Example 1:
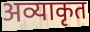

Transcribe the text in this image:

अव्याकृत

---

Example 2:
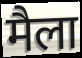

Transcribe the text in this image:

मैला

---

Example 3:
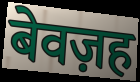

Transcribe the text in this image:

बेवज़ह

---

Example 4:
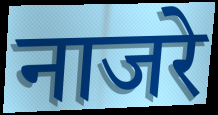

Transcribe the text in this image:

नाजरे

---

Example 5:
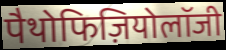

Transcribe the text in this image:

पैथोफिज़ियोलॉजी